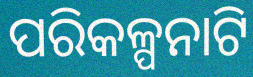
ପରିକଳ୍ପନାଟି